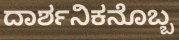
ದಾರ್ಶನಿಕನೊಬ್ಬ